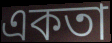
একতা